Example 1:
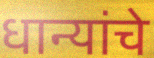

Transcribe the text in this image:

धान्यांचे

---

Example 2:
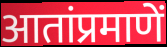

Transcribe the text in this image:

आतांप्रमाणें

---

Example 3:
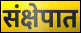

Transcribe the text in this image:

संक्षेपात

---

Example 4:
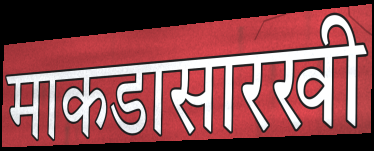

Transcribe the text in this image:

माकडासारखी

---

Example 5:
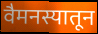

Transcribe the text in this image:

वैमनस्यातून